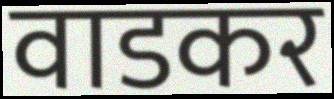
वाडकर